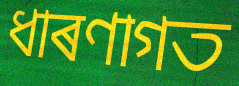
ধাৰণাগত